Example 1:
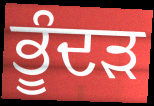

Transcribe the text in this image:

ਭੂੰਦੜ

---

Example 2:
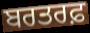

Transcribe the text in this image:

ਬਰਤਰਫ਼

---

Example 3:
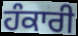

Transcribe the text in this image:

ਹੰਕਾਰੀ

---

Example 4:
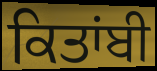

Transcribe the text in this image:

ਕਿਤਾਂਬੀ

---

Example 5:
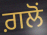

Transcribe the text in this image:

ਗ਼ਲੋਂ